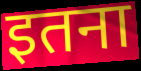
इतना